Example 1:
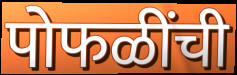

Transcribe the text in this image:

पोफळींची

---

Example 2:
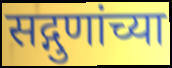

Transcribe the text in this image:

सद्गुणांच्या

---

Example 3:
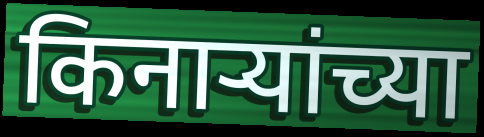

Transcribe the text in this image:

किनाऱ्यांच्या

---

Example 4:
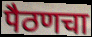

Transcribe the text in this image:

पैठणचा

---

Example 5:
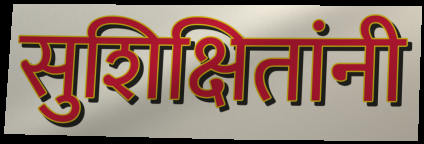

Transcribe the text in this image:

सुशिक्षितांनी